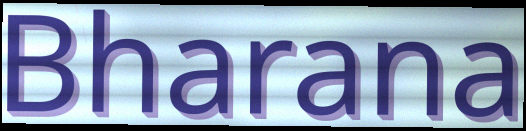
Bharana